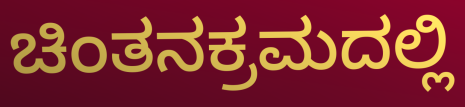
ಚಿಂತನಕ್ರಮದಲ್ಲಿ